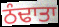
ਠੰਢਾਤਾ